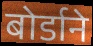
बोर्डाने